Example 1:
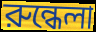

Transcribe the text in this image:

রুন্ধেলা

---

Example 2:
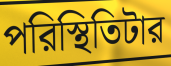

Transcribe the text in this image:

পরিস্থিতিটার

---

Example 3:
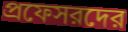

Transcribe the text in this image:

প্রফেসরদের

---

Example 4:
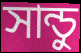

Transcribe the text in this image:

সান্ডু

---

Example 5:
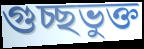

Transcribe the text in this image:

গুচ্ছভুক্ত